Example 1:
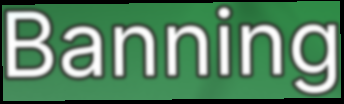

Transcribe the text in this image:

Banning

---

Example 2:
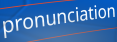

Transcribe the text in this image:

pronunciation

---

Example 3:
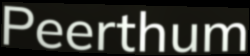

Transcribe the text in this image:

Peerthum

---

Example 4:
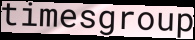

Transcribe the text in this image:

timesgroup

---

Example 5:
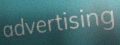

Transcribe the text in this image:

advertising